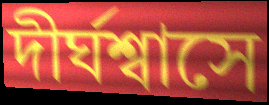
দীর্ঘশ্বাসে